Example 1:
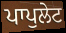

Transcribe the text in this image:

ਪਾਪੁਲੇਟ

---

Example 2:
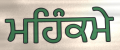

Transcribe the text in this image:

ਮਹਿੰਕਮੇ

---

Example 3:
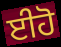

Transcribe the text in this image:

ਈਹੋ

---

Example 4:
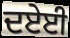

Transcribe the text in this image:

ਦਏਈ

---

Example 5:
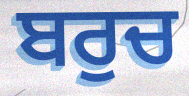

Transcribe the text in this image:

ਬਰੁਚ